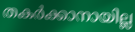
തകർക്കാനായില്ല